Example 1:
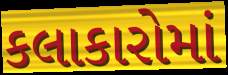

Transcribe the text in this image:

કલાકારોમાં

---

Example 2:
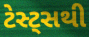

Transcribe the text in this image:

ટેસ્ટ્સથી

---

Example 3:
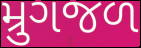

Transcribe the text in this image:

મ્રુગજળ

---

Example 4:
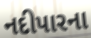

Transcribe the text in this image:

નદીપારના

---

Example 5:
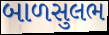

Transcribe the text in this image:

બાળસુલભ